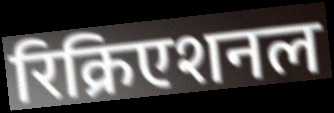
रिक्रिएशनल